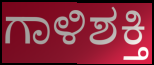
ಗಾಳಿಶಕ್ತಿ